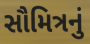
સૌમિત્રનું